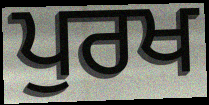
ਪੁਰਖ